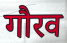
गौरव